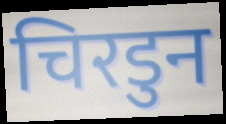
चिरडुन